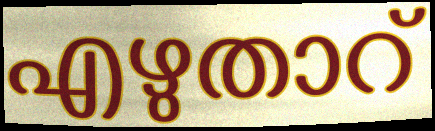
എഴുതാറ്